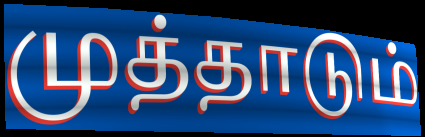
முத்தாடும்